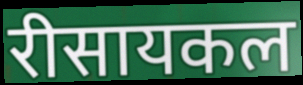
रीसायकल